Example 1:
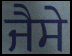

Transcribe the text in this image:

ਜੈਸੇ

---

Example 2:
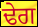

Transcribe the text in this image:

ਢੇਗ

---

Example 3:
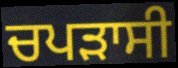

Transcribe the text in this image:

ਚਪੜਾਸੀ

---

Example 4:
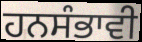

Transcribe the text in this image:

ਹਨਸੰਭਾਵੀ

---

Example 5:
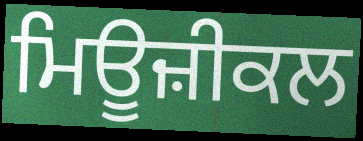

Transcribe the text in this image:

ਮਿਊਜ਼ੀਕਲ